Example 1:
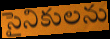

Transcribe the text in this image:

సైనికులను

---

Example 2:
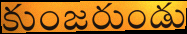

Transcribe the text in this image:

కుంజరుండు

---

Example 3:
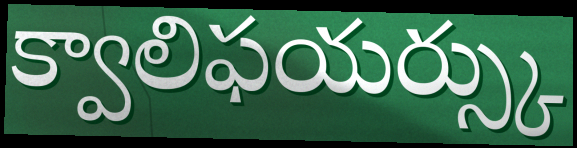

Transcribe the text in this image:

క్వాలిఫయర్స్కు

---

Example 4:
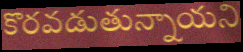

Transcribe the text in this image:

కొరవడుతున్నాయని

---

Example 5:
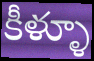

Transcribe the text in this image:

కీళ్ళూ